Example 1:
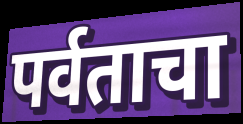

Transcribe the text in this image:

पर्वताचा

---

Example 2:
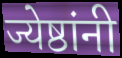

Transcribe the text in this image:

ज्येष्ठांनी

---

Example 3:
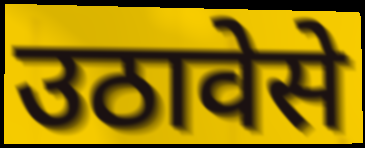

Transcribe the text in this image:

उठावेसे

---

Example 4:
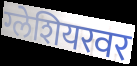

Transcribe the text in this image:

ग्लेशियरवर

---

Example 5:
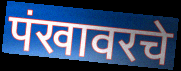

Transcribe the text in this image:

पंखावरचे